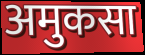
अमुकसा